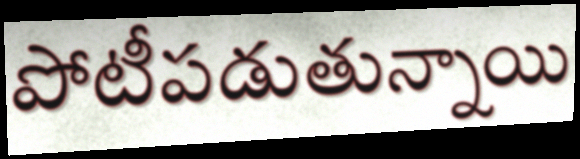
పోటీపడుతున్నాయి